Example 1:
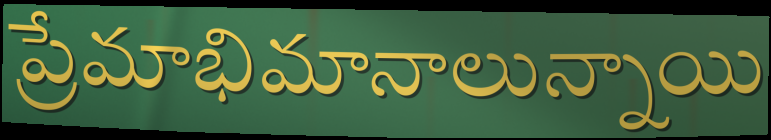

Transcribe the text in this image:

ప్రేమాభిమానాలున్నాయి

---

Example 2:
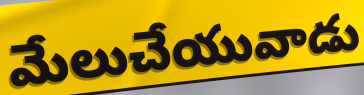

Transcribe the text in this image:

మేలుచేయువాడు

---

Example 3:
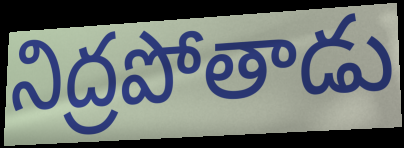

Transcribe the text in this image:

నిద్రపోతాడు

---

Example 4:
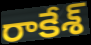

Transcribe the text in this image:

రాకేశ్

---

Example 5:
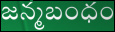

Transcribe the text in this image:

జన్మబంధం